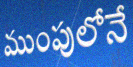
ముంపులోనే